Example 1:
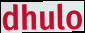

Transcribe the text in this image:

dhulo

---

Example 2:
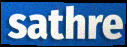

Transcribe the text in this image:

sathre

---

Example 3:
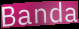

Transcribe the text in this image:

Banda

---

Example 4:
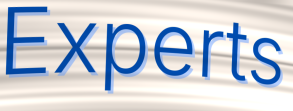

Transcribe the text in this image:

Experts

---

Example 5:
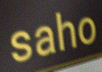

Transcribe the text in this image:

saho